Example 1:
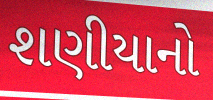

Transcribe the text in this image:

શણીયાનો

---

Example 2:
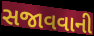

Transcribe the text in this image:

સજાવવાની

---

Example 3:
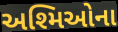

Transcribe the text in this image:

અશ્મિઓના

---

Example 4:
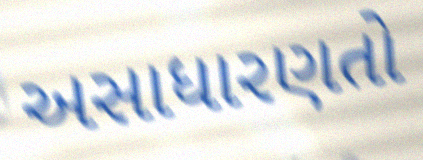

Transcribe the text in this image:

અસાધારણતો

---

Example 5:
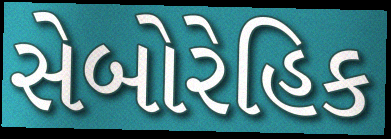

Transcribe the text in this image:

સેબોરેહિક